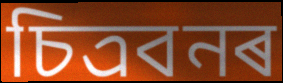
চিত্ৰবনৰ